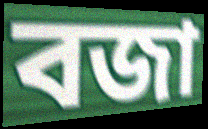
বজা